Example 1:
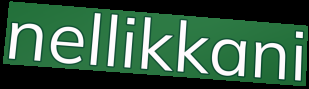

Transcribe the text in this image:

nellikkani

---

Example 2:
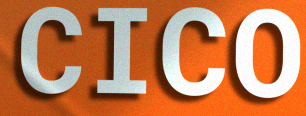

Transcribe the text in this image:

CICO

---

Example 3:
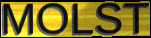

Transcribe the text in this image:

MOLST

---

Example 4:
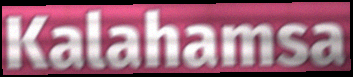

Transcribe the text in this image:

Kalahamsa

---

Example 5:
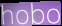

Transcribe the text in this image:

hobo